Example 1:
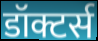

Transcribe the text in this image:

डॉक्टर्स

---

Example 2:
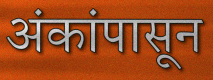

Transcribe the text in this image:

अंकांपासून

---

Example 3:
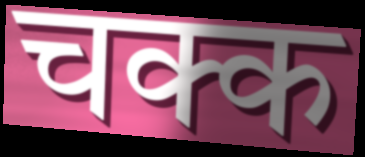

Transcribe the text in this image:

चक्‍क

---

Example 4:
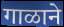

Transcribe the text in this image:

गाळाने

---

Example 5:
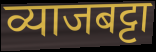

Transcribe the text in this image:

व्याजबट्टा